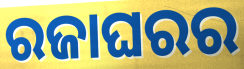
ରଜାଘରର